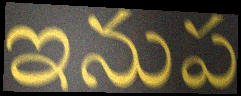
ఇనుప